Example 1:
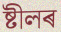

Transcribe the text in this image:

ষ্টীলৰ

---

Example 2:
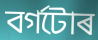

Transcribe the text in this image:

বৰ্গটোৰ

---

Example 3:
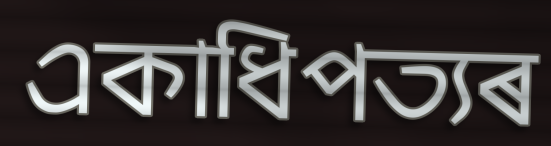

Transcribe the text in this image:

একাধিপত্যৰ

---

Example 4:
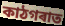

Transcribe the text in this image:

কাঠগৰাত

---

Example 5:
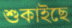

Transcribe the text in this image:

শুকাইছে